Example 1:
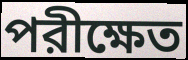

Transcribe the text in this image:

পরীক্ষেত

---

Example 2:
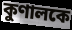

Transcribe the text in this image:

কুণালকে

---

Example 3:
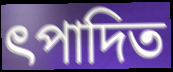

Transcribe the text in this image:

ৎপাদিত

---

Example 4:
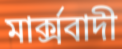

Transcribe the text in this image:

মার্ক্সবাদী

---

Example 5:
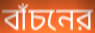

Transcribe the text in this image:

বাঁচনের